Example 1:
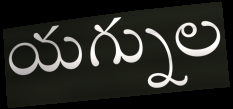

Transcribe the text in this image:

యగ్నుల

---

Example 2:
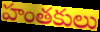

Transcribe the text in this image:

హంతకులు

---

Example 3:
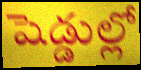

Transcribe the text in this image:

షెడ్డుల్లో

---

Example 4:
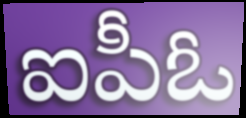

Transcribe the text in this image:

ఐపీఓ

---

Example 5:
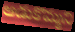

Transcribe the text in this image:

ఆడుకొమ్మని